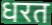
धरत